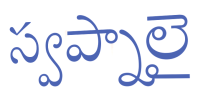
స్వప్నాలై